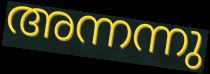
അന്നന്നു